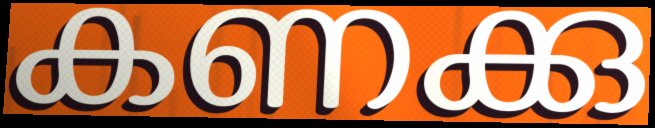
കണക്കു